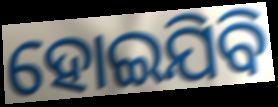
ହୋଇଯିବି